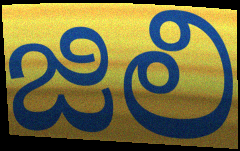
జిలి